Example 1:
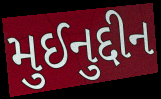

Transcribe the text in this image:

મુઈનુદ્દીન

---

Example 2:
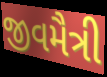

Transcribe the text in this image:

જીવમૈત્રી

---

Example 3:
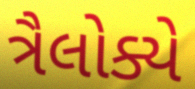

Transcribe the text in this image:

ત્રૈલોક્યે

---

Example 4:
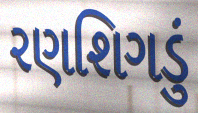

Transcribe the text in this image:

રણશિગડું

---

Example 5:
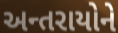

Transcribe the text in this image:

અન્તરાયોને